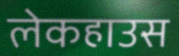
लेकहाउस